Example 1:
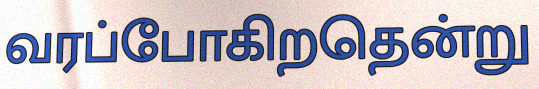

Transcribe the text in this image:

வரப்போகிறதென்று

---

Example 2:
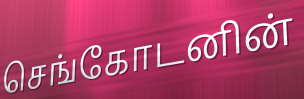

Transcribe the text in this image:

செங்கோடனின்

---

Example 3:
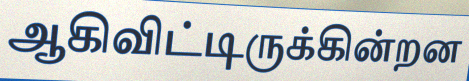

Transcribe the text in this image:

ஆகிவிட்டிருக்கின்றன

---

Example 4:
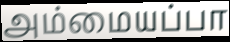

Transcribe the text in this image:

அம்மையப்பா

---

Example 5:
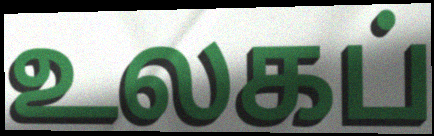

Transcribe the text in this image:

உலகப்